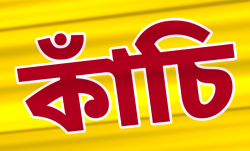
কাঁচি